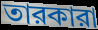
তারকারা